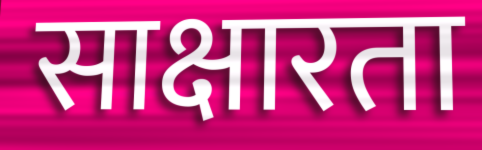
साक्षारता